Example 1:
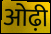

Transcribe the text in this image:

ओढ़ी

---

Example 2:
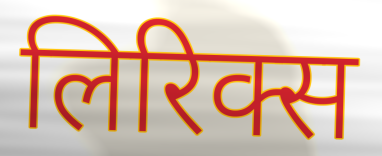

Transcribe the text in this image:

लिरिक्स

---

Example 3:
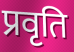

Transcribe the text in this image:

प्रवृति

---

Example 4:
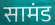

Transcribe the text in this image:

सामंड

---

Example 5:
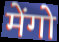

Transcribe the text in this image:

मेंगो